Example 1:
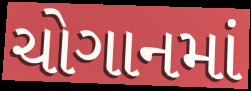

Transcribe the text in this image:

ચોગાનમાં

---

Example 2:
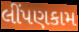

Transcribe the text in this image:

લીંપણકામ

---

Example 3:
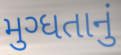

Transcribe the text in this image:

મુગ્ધતાનું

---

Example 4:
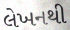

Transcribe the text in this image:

લેખનથી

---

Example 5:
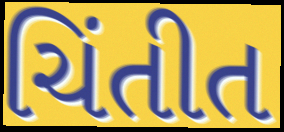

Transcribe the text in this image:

ચિંતીત